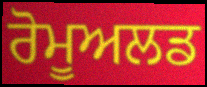
ਰੋਮੂਅਲਡ